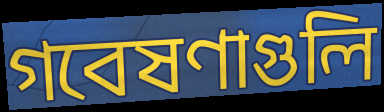
গবেষণাগুলি